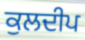
ਕੁਲਦੀਪ